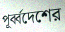
পূর্ব্বদেশের